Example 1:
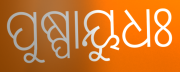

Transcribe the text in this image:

ପୁଷ୍ପାୟୁଧଃ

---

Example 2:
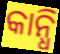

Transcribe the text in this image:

କାନ୍ଧି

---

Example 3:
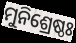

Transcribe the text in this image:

ମୁନିଶ୍ରେଷ୍ଠଃ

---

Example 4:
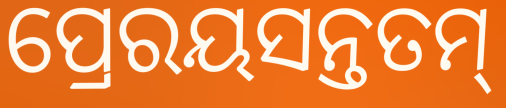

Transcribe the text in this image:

ପ୍ରେରୟସନ୍ତତମ୍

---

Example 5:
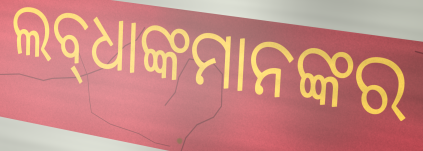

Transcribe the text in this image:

ଲବ୍‌ଧାଙ୍କମାନଙ୍କର